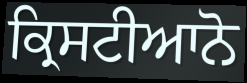
ਕ੍ਰਿਸਟੀਆਨੋ